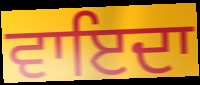
ਵਾਇਦਾ